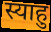
स्याहु